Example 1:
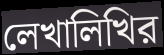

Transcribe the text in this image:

লেখালিখির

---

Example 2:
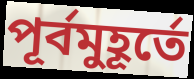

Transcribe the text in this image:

পূর্বমুহূর্তে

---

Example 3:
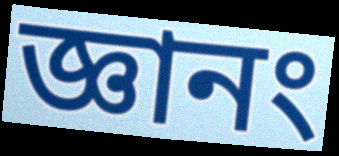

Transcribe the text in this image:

জ্ঞানং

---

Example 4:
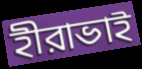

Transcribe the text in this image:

হীরাভাই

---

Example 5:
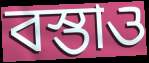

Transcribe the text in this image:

বস্তাও